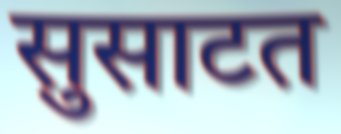
सुसाटत